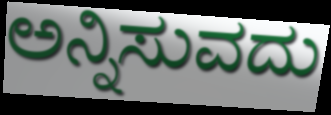
ಅನ್ನಿಸುವದು